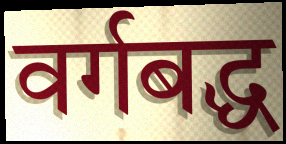
वर्गबद्ध